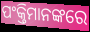
ପଂକ୍ତିମାନଙ୍କରେ